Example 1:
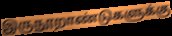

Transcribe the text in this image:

இருநூறாண்டுகளுக்கு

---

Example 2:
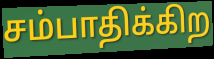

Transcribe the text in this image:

சம்பாதிக்கிற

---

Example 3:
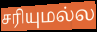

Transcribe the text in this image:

சரியுமல்ல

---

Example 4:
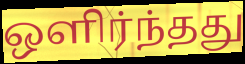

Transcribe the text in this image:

ஒளிர்ந்தது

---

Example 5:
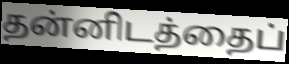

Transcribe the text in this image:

தன்னிடத்தைப்